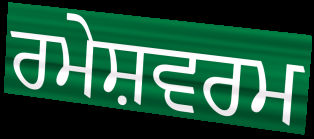
ਰਮੇਸ਼ਵਰਮ